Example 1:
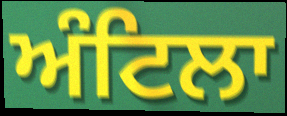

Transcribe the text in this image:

ਅੰਟਿਲਾ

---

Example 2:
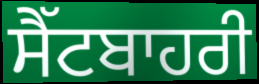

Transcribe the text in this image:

ਸੈੱਟਬਾਹਰੀ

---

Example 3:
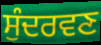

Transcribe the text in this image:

ਸੁੰਦਰਵਣ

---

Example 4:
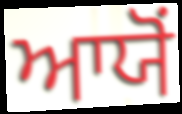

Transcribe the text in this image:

ਆਯੋਂ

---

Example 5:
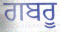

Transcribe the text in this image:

ਗਬਰੂ